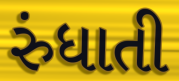
રુંધાતી